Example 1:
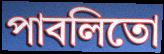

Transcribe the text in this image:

পাবলিতো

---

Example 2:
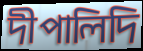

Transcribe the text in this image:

দীপালিদি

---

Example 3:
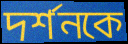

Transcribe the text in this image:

দর্শনকে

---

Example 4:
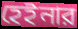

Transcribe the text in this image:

হেইনার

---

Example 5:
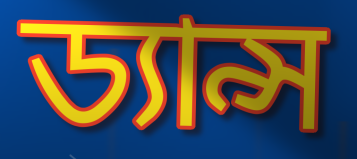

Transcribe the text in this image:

ড্যান্স